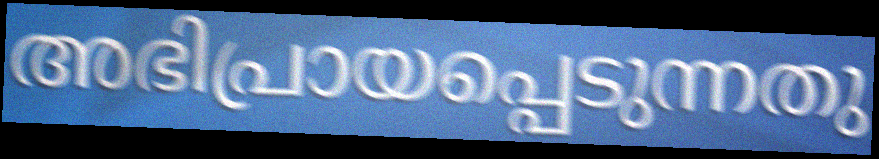
അഭിപ്രായപ്പെടുന്നതു